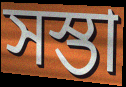
সস্তা